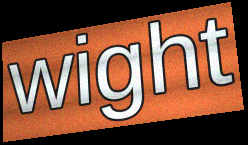
wight